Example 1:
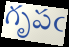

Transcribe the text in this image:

గృపఁ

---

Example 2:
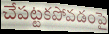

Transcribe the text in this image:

చేపట్టకపోవడంపై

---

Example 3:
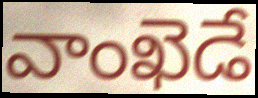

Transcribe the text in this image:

వాంఖెడే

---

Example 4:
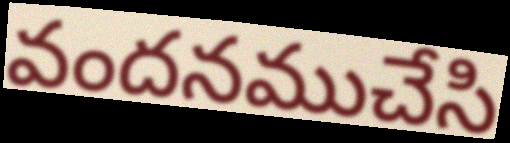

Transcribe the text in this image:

వందనముచేసి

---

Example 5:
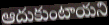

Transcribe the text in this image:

ఆదుకుంటాయని